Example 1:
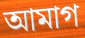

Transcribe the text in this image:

আমাগ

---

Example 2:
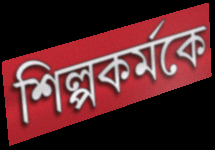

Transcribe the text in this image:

শিল্পকর্মকে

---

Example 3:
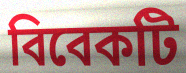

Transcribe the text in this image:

বিবেকটি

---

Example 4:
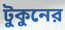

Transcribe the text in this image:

টুকুনের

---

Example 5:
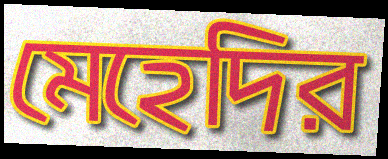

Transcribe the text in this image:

মেহেদির